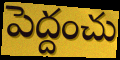
పెద్దంచు